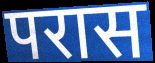
परास